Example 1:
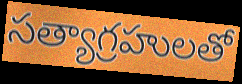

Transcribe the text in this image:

సత్యాగ్రహులతో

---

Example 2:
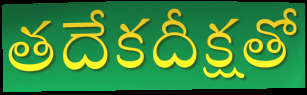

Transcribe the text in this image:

తదేకదీక్షతో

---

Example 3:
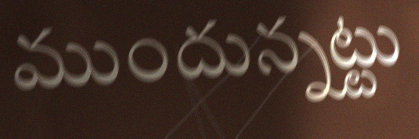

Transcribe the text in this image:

ముందున్నట్టు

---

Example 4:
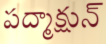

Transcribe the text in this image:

పద్మాక్షున్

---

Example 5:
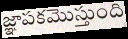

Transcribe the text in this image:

జ్ఞాపకమొస్తుంది